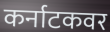
कर्नाटकवर